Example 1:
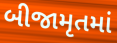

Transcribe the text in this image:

બીજામૃતમાં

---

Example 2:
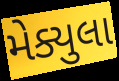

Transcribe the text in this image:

મેક્યુલા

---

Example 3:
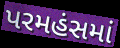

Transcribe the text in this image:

પરમહંસમાં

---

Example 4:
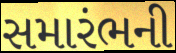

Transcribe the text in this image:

સમારંભની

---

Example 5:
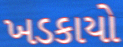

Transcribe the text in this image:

ખડકાયો